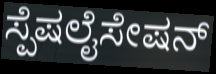
ಸ್ಪೆಷಲೈಸೇಷನ್